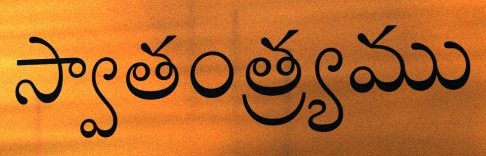
స్వాతంత్ర్యము